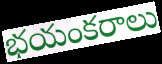
భయంకరాలు